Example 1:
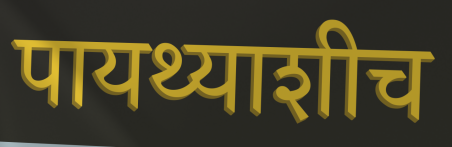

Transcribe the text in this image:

पायथ्याशीच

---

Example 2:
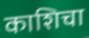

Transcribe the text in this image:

काशिचा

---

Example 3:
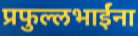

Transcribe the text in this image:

प्रफुल्लभाईंना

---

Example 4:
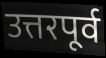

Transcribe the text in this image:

उत्तरपूर्व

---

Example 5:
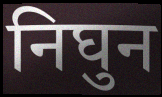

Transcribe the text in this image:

निघुन